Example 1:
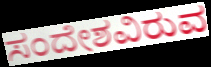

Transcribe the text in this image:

ಸಂದೇಶವಿರುವ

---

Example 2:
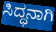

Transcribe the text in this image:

ಸಿದ್ಧನಾಗಿ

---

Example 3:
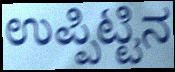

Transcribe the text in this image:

ಉಪ್ಪಿಟ್ಟಿನ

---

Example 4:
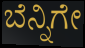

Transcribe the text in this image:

ಬೆನ್ನಿಗೇ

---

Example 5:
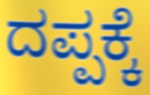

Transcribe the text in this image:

ದಪ್ಪಕ್ಕೆ